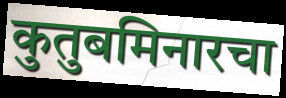
कुतुबमिनारचा